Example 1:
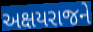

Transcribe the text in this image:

અક્ષયરાજને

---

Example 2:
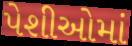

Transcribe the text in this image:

પેશીઓમાં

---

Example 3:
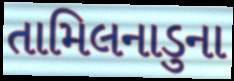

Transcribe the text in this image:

તામિલનાડુના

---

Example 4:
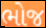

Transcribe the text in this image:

ભોજ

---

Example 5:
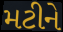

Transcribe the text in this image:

મટીને